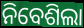
ନିବେଶିଲା